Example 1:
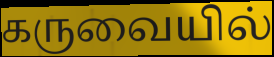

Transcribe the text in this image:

கருவையில்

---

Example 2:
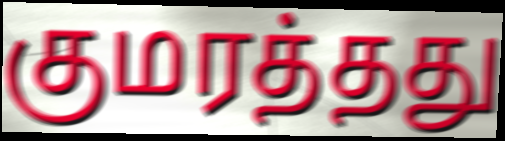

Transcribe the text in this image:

குமரத்தது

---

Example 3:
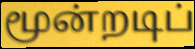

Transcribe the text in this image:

மூன்றடிப்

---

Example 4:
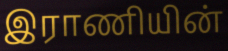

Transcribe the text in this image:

இராணியின்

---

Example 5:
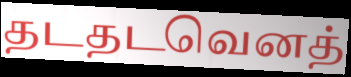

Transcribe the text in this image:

தடதடவெனத்